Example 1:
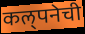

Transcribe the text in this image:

कल्पनेची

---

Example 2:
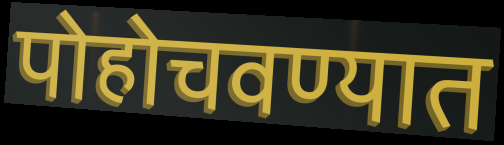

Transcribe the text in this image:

पोहोचवण्यात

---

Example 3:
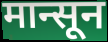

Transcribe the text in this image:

मान्सून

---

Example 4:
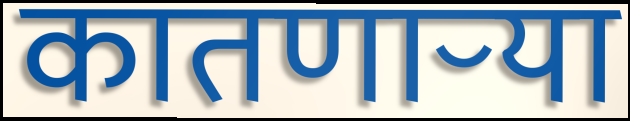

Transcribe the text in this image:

कातणाऱ्या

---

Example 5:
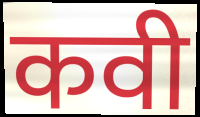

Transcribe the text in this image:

कवी